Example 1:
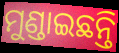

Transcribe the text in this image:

ମୁଣ୍ଡାଇଛନ୍ତି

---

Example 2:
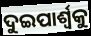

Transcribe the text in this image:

ଦୁଇପାର୍ଶ୍ବକୁ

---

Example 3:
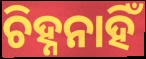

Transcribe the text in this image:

ଚିହ୍ନନାହିଁ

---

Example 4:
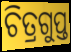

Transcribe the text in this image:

ଚିତ୍ରଗୁପ୍ତ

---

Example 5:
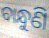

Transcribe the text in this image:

ବାନ୍ଧୁଣି